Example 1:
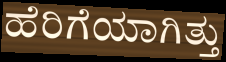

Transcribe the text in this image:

ಹೆರಿಗೆಯಾಗಿತ್ತು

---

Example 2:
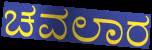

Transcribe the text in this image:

ಚವಲಾರ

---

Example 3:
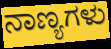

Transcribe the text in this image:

ನಾಣ್ಯಗಳು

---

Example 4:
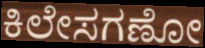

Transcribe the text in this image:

ಕಿಲೇಸಗಣೋ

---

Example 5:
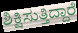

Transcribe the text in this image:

ಶಿಕ್ಷಿಸುತ್ತಿದ್ದಾರೆ